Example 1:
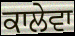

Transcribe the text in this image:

ਕਾਲੇਵਾ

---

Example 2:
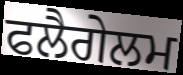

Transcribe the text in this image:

ਫਲੈਗੇਲਮ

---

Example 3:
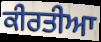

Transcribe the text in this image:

ਕੀਰਤੀਆ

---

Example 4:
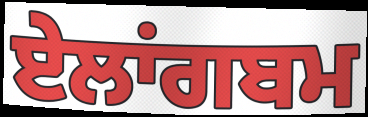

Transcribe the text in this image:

ਏਲਾਂਗਬਮ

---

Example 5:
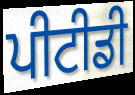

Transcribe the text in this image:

ਪੀਟੀਡੀ